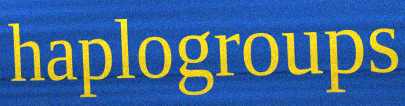
haplogroups